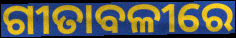
ଗୀତାବଳୀରେ